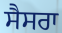
ਸੈਸਰਾ